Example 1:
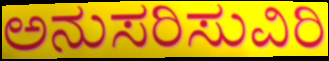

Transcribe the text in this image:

ಅನುಸರಿಸುವಿರಿ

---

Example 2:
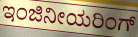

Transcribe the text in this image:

ಇಂಜಿನೀಯರಿಂಗ್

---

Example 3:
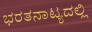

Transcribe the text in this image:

ಭರತನಾಟ್ಯದಲ್ಲಿ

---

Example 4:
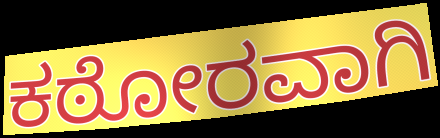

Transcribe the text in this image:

ಕಠೋರವಾಗಿ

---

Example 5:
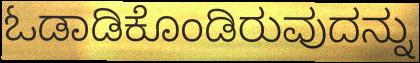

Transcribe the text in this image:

ಓಡಾಡಿಕೊಂಡಿರುವುದನ್ನು